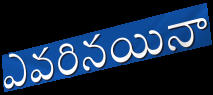
ఎవరినయినా